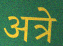
अत्रे